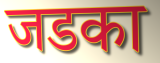
जडका